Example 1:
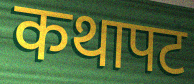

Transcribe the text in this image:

कथापट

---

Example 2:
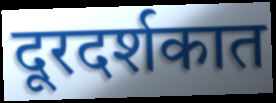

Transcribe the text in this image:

दूरदर्शकात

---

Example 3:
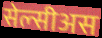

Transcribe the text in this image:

सेल्सीअस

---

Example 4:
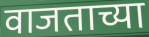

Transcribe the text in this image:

वाजताच्या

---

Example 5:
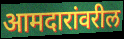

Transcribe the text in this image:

आमदारांवरील